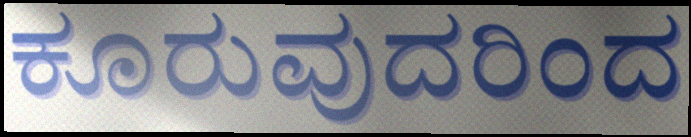
ಕೂರುವುದರಿಂದ